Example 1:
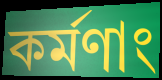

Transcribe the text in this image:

কর্মণাং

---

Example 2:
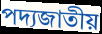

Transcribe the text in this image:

পদ্যজাতীয়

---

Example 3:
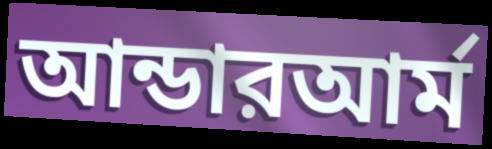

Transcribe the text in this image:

আন্ডারআর্ম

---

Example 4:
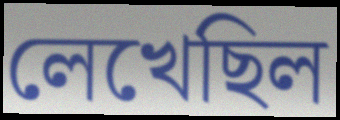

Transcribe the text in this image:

লেখেছিল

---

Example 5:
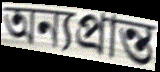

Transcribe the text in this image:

অন্যপ্রান্ত